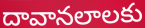
దావానలాలకు